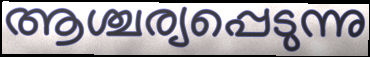
ആശ്ചര്യപ്പെടുന്നു